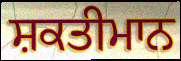
ਸ਼ਕਤੀਮਾਨ